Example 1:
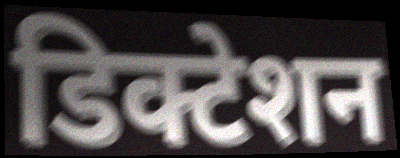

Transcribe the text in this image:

डिक्टेशन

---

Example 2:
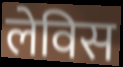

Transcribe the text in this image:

लेविस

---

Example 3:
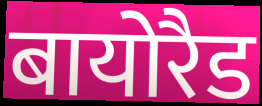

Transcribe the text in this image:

बायोरैड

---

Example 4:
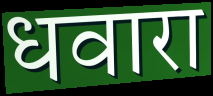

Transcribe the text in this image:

धवारा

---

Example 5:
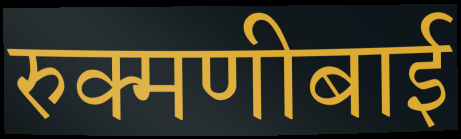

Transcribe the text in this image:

रुक्मणीबाई